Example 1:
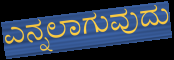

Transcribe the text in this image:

ಎನ್ನಲಾಗುವುದು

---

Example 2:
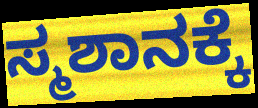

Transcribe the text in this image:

ಸ್ಮಶಾನಕ್ಕೆ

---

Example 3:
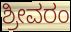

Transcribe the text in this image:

ಶ್ರೀವರಂ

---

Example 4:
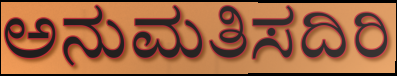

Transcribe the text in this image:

ಅನುಮತಿಸದಿರಿ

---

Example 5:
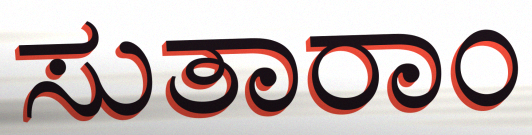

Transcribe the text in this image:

ಸುತಾರಾಂ